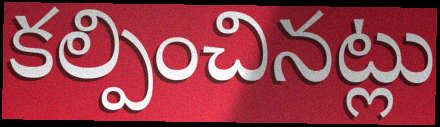
కల్పించినట్లు